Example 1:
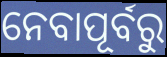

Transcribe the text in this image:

ନେବାପୂର୍ବରୁ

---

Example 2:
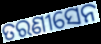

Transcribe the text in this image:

ତରଣୀସେନ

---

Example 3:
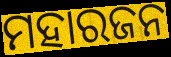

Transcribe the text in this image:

ମହାରଜନ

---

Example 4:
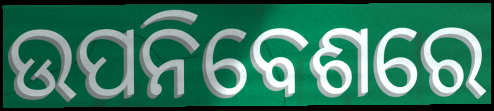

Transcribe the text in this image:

ଉପନିବେଶରେ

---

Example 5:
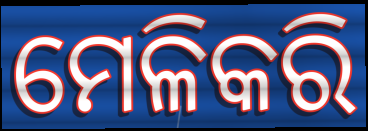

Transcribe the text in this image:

ମେଳିକରି